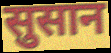
सुसान